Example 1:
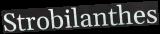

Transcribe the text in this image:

Strobilanthes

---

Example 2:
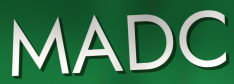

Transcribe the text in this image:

MADC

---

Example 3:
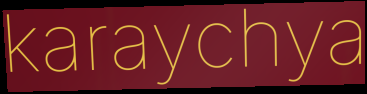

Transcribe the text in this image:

karaychya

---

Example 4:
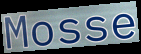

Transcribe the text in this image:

Mosse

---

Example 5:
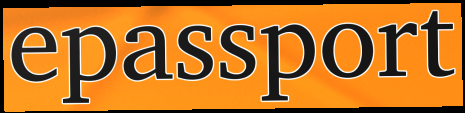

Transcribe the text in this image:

epassport